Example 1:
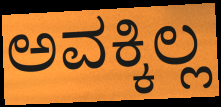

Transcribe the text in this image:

ಅವಕ್ಕಿಲ್ಲ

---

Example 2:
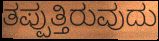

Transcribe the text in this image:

ತಪ್ಪುತ್ತಿರುವುದು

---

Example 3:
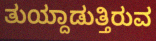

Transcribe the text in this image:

ತುಯ್ದಾಡುತ್ತಿರುವ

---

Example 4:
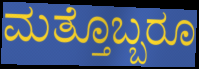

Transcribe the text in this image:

ಮತ್ತೊಬ್ಬರೂ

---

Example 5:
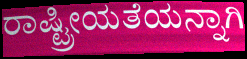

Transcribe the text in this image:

ರಾಷ್ಟ್ರೀಯತೆಯನ್ನಾಗಿ